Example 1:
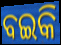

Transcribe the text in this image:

ବଇକି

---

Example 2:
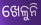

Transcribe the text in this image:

ଖେଳୁନି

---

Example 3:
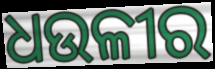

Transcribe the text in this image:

ଧଉଳୀର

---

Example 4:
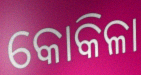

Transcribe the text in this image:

କୋକିଳା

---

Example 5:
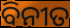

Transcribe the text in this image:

ବିନୀତ